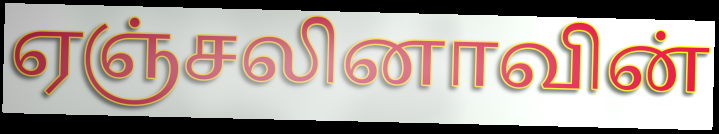
ஏஞ்சலினாவின்